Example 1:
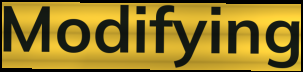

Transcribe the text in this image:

Modifying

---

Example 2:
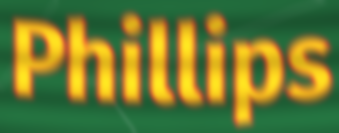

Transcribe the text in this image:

Phillips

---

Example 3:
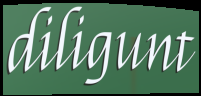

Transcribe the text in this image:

diligunt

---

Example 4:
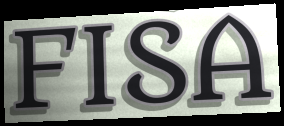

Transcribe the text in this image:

FISA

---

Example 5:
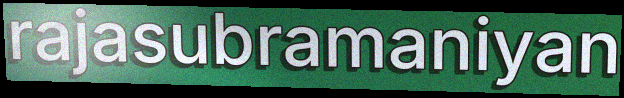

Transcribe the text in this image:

rajasubramaniyan